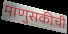
माणुसकीची